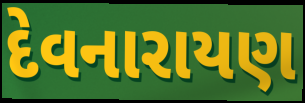
દેવનારાયણ